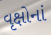
વૃક્ષોનાં